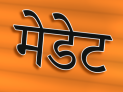
मेडेट